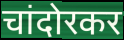
चांदोरकर